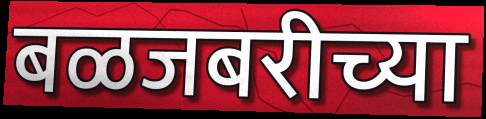
बळजबरीच्या